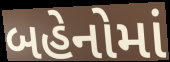
બહેનોમાં